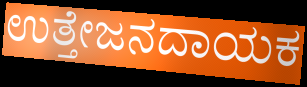
ಉತ್ತೇಜನದಾಯಕ